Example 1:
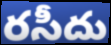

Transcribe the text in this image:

రసీదు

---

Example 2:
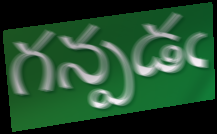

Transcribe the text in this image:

గన్పడఁ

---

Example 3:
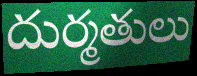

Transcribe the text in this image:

దుర్మతులు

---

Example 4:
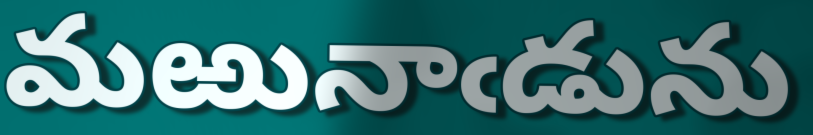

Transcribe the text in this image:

మఱునాఁడును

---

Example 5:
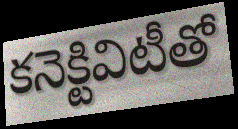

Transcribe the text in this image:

కనెక్టివిటీతో